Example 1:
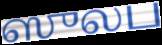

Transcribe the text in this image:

ஸுலப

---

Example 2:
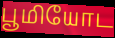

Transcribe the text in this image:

பூமியோட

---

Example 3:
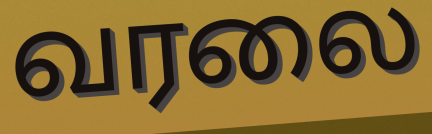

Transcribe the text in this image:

வரலை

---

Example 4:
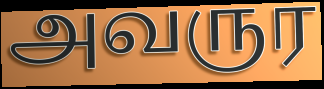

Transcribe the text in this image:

அவருர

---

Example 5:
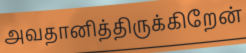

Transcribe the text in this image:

அவதானித்திருக்கிறேன்